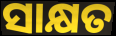
ସାକ୍ଷତ